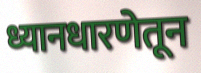
ध्यानधारणेतून